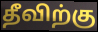
தீவிற்கு